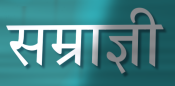
सम्राज्ञी